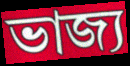
ভাজ্য